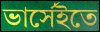
ভার্সেইতে